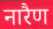
नारैण